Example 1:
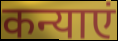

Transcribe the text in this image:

कन्याएं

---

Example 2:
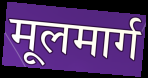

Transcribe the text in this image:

मूलमार्ग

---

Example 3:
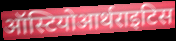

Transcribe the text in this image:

ऑस्टियोआर्थराइटिस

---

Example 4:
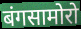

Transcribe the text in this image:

बंगसामोरो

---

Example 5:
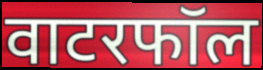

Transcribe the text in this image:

वाटरफॉल